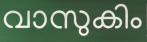
വാസുകിം